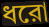
ধরো